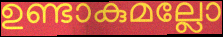
ഉണ്ടാകുമല്ലോ